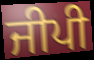
ਜੀਪੀ